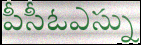
పీసీఓఎస్ను